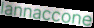
Iannaccone